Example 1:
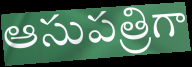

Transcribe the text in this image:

ఆసుపత్రిగా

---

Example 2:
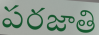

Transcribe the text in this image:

పరజాతి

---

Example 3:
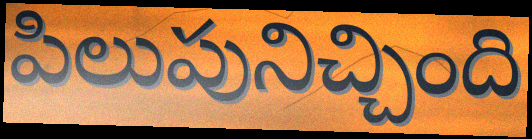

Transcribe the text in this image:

పిలుపునిచ్చింది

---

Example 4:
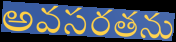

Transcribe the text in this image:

అవసరతను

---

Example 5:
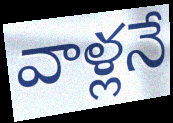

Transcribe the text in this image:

వాళ్లనే